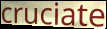
cruciate